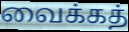
வைக்கத்